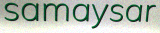
samaysar